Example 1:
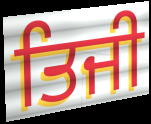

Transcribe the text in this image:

ਤਿਜੀ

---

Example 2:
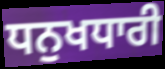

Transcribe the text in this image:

ਧਨੁਖਧਾਰੀ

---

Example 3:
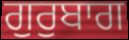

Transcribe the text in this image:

ਗੁਰੁਬਾਗ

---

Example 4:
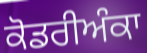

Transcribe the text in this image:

ਕੋਡਰੀਅੰਕਾ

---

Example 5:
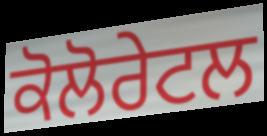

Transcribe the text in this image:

ਕੋਲੋਰੇਟਲ